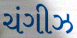
ચંગીઝ